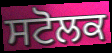
ਸਟੋਲਕ